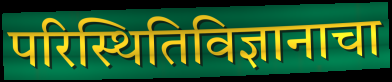
परिस्थितिविज्ञानाचा